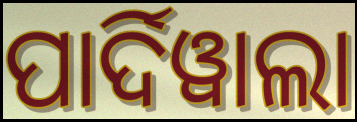
ପାର୍ଦିୱାଲା